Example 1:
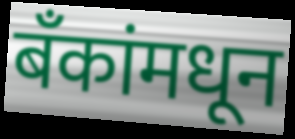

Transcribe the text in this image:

बॅंकांमधून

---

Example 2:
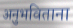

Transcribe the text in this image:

अनुभविताना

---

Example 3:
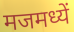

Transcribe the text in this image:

मजमध्यें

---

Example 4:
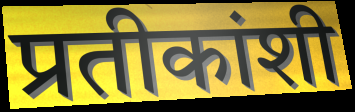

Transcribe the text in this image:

प्रतीकांशी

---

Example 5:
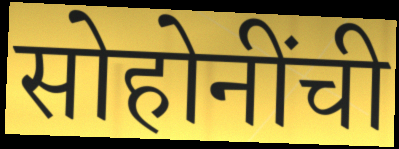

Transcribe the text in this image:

सोहोनींची